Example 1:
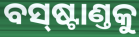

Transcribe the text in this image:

ବସ୍‌ଷ୍ଟାଣ୍ତକୁ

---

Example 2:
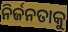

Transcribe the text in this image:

ନିର୍ଜନତାକୁ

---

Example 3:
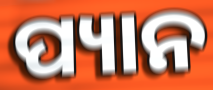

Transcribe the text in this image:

ପ୍ୟାନ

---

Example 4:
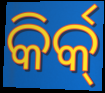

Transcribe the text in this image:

କିର୍କ୍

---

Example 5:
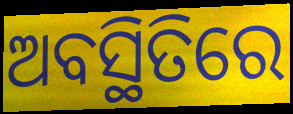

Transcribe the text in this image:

ଅବସ୍ଥିତିରେ